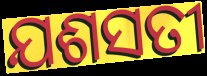
ଯଶସତୀ